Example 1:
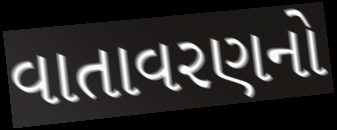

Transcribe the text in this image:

વાતાવરણનો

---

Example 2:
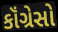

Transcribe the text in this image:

કૉંગ્રેસો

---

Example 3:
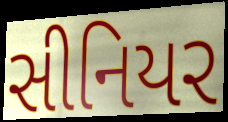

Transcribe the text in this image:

સીનિયર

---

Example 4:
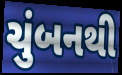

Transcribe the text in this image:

ચુંબનથી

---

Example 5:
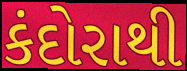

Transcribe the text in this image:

કંદોરાથી